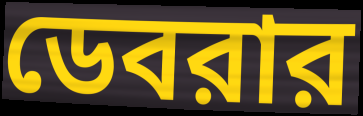
ডেবরার